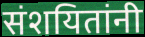
संशयितांनी